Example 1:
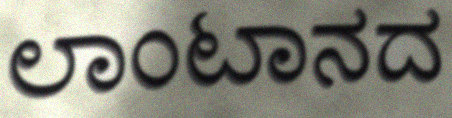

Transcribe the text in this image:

ಲಾಂಟಾನದ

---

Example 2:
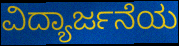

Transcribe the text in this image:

ವಿದ್ಯಾರ್ಜನೆಯ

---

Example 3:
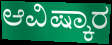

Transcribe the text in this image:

ಆವಿಷ್ಕಾರ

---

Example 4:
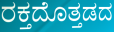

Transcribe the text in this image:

ರಕ್ತದೊತ್ತಡದ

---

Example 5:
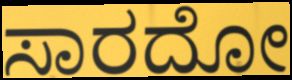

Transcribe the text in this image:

ಸಾರದೋ